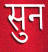
सुन